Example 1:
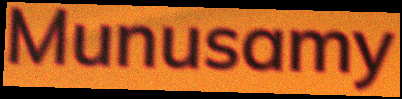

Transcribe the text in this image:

Munusamy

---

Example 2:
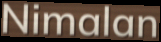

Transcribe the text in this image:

Nimalan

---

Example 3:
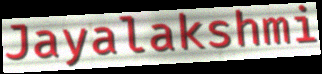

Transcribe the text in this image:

Jayalakshmi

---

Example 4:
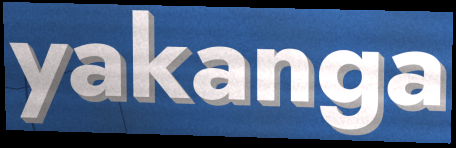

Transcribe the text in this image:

yakanga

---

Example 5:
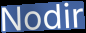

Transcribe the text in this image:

Nodir